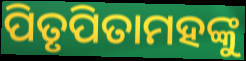
ପିତୃପିତାମହଙ୍କୁ